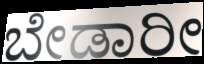
ಬೇಡಾರೀ